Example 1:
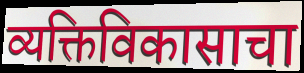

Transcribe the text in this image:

व्यक्तिविकासाचा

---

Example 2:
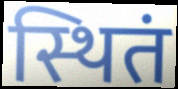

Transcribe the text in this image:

स्थितं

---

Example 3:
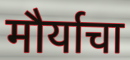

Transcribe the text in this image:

मौर्याचा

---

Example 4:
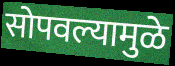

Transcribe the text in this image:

सोपवल्यामुळे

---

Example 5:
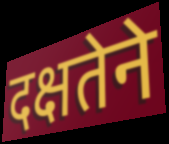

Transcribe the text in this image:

दक्षतेने